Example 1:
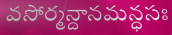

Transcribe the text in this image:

వసోర్మన్దానమన్ధసః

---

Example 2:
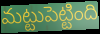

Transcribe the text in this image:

మట్టుపెట్టింది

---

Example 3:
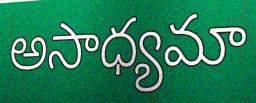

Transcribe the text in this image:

అసాధ్యమా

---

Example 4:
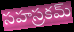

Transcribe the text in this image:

సహస్రకమ్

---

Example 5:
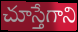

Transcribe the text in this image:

చూస్తేగాని